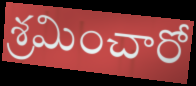
శ్రమించారో